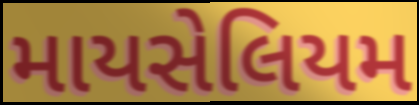
માયસેલિયમ